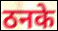
ठनके